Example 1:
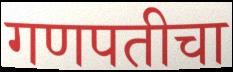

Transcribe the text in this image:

गणपतीचा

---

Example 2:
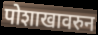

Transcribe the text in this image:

पोशाखावरुन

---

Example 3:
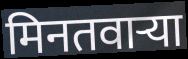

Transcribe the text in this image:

मिनतवार्‍या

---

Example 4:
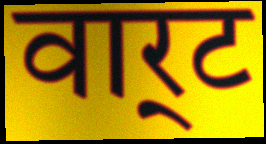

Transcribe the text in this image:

वार्ट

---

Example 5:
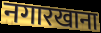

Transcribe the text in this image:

नगारखाना